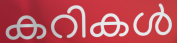
കറികൾ